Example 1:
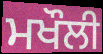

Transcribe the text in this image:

ਮਖੌਲੀ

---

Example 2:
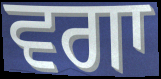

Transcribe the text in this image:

ਵਗਾ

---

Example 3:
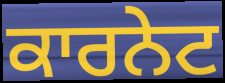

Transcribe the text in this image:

ਕਾਰਨੇਟ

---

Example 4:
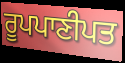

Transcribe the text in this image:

ਰੂਪਪਾਣੀਪਤ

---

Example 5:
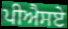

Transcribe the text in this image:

ਪੀਐਸਏ